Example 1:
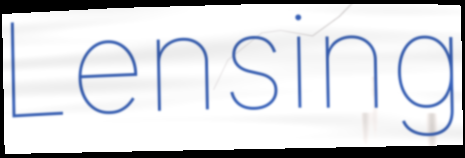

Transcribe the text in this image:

Lensing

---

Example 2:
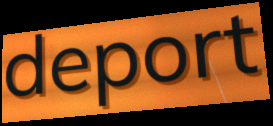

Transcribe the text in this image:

deport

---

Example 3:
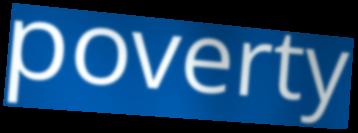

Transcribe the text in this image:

poverty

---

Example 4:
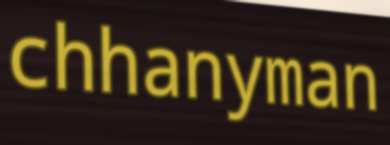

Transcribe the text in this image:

chhanyman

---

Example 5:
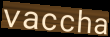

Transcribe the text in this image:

vaccha